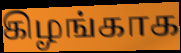
கிழங்காக